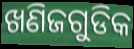
ଖଣିଜଗୁଡିକ